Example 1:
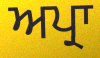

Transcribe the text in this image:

ਅਪ੍ਰਾ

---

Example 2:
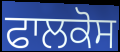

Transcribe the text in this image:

ਫਾਲਕੋਸ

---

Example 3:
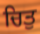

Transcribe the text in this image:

ਚਿਤੁ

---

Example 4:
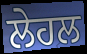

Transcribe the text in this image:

ਲੇਹਲ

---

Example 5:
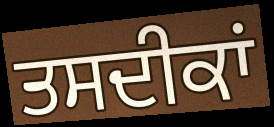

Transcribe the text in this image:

ਤਸਦੀਕਾਂ